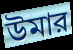
উমার